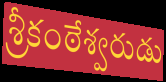
శ్రీకంఠేశ్వరుడు